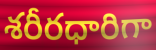
శరీరధారిగా